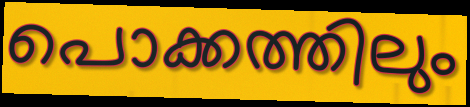
പൊക്കത്തിലും